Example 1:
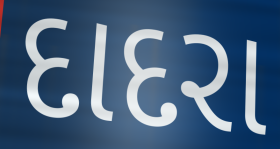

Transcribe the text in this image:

દાદરા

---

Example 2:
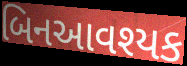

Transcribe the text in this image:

બિનઆવશ્યક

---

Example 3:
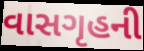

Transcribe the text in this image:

વાસગૃહની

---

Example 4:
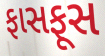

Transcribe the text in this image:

ફાસફૂસ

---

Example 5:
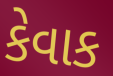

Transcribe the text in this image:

કેવાક